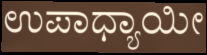
ಉಪಾಧ್ಯಾಯೀ